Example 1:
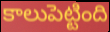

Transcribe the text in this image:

కాలుపెట్టింది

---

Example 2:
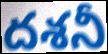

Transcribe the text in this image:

దశనీ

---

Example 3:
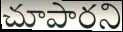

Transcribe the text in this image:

చూపారని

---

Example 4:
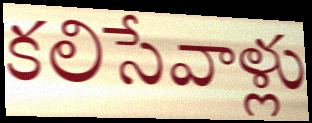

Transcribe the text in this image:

కలిసేవాళ్లు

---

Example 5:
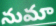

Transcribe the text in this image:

నుమా